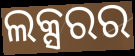
ଲକ୍ସରର